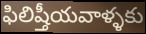
ఫిలిష్తీయవాళ్ళకు